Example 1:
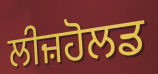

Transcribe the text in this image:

ਲੀਜ਼ਹੋਲਡ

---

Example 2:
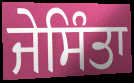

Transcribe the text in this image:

ਜੇਸਿੰਤਾ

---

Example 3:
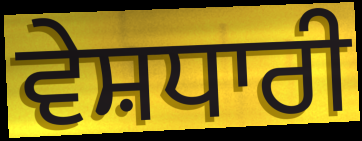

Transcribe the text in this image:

ਵੇਸ਼ਧਾਰੀ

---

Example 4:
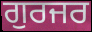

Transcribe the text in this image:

ਗੁਰਜਰ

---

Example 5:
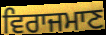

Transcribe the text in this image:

ਵਿਰਾਜਮਾਣ